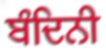
ਬੰਦਿਨੀ